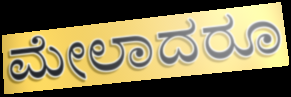
ಮೇಲಾದರೂ